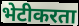
भेटीकरता